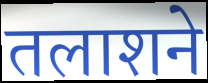
तलाशने